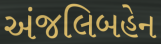
અંજલિબહેન